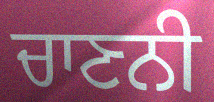
ਚਾਣਨੀ